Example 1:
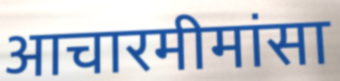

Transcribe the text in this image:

आचारमीमांसा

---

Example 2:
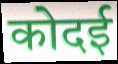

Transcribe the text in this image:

कोदई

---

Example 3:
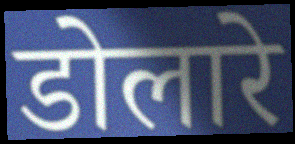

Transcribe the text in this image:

डोलारे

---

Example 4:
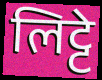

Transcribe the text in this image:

लिट्टे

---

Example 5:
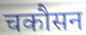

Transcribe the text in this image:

चकौसन